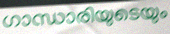
ഗാന്ധാരിയുടെയും